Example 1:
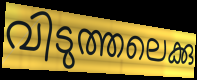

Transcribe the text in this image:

വിടുത്തലെക്കു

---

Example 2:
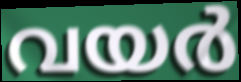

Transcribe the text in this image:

വയർ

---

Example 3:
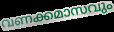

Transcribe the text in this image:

വണക്കമാസവും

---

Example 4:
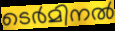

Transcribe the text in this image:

ടെർമിനൽ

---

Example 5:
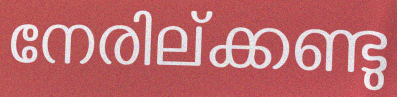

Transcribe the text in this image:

നേരില്ക്കണ്ടു